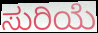
ಸುರಿಯೆ